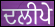
ਦਲੀਪੇ